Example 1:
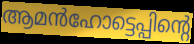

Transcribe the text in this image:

ആമൻഹോട്ടെപ്പിന്റെ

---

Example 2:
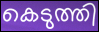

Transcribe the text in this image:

കെടുത്തി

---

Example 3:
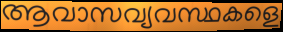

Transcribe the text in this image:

ആവാസവ്യവസ്ഥകളെ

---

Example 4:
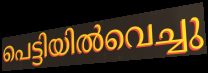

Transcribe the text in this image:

പെട്ടിയിൽവെച്ചു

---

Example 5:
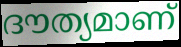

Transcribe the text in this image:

ദൗത്യമാണ്